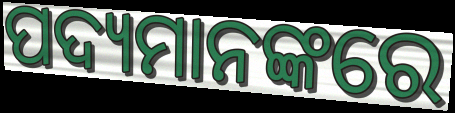
ପଦ୍ୟମାନଙ୍କରେ